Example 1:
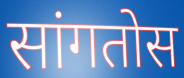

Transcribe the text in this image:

सांगतोस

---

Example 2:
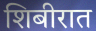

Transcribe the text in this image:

शिबीरात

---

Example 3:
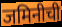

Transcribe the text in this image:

जमिनीची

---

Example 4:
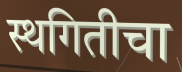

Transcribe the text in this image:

स्थगितीचा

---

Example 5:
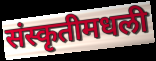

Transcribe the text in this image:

संस्कृतीमधली